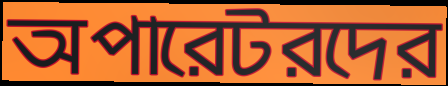
অপারেটরদের